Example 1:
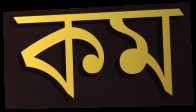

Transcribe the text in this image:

কম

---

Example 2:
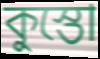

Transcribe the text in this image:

কুস্তো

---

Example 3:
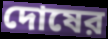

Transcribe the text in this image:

দোষের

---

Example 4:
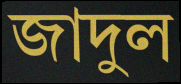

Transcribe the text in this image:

জাদুল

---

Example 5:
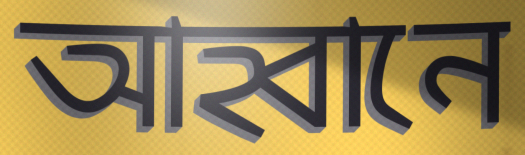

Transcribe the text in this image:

আহ্বানে